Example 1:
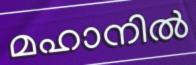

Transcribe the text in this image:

മഹാനിൽ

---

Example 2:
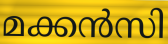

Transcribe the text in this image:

മക്കൻസി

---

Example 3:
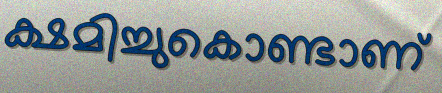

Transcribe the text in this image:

ക്ഷമിച്ചുകൊണ്ടാണ്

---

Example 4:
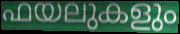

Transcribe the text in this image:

ഫയലുകളും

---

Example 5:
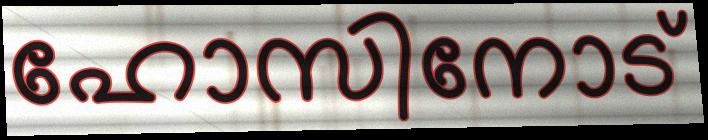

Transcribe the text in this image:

ഹോസിനോട്